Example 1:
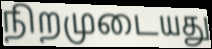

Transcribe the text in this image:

நிறமுடையது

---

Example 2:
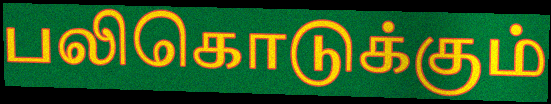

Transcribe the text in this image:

பலிகொடுக்கும்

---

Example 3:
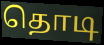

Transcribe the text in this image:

தொடி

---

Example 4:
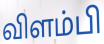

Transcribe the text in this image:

விளம்பி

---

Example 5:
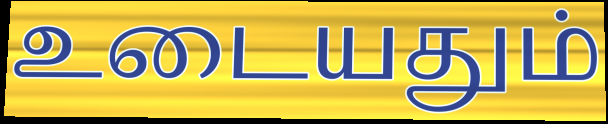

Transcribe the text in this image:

உடையதும்